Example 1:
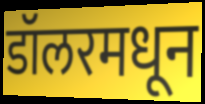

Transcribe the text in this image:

डॉलरमधून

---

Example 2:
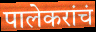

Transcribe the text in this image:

पालेकरांचं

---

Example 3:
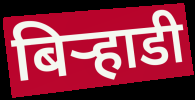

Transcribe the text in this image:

बिर्‍हाडी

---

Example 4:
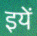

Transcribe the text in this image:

इयें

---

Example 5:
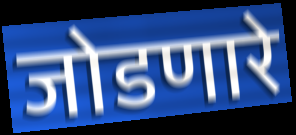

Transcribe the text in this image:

जोडणारे